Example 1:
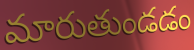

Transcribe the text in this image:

మారుతుండడం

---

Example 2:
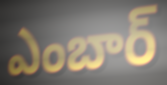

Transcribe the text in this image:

ఎంబార్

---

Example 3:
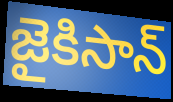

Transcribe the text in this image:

జైకిసాన్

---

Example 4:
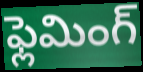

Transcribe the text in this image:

ఫ్లెమింగ్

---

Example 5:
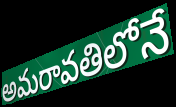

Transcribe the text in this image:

అమరావతిలోనే